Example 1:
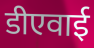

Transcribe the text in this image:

डीएवाई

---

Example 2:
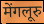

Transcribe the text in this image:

मेंगलूरु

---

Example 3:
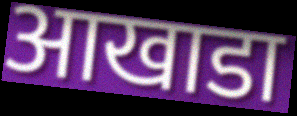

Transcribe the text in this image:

आखाडा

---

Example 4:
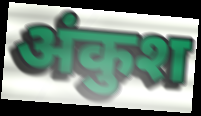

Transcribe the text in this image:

अंकुश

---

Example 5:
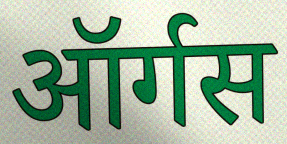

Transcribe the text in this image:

ऑर्गस